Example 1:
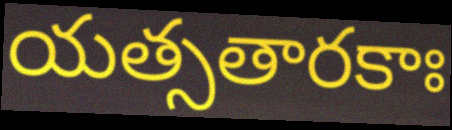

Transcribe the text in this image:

యత్సతారకాః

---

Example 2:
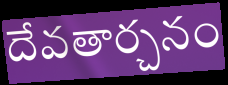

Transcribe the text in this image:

దేవతార్చనం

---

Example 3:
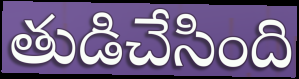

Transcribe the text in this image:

తుడిచేసింది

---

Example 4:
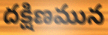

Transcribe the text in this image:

దక్షిణమున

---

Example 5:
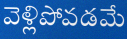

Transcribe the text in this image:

వెళ్లిపోవడమే